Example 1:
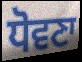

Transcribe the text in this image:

ਧੋਵਣਾ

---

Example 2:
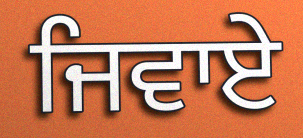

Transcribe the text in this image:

ਜਿਵਾਏ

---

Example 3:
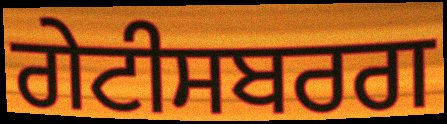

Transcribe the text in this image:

ਗੇਟੀਸਬਰਗ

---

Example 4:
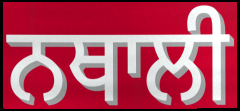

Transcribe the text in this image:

ਨਥਾਲੀ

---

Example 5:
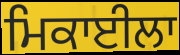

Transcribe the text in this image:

ਮਿਕਾਈਲਾ